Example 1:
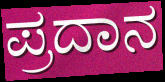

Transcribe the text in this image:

ಪ್ರದಾನ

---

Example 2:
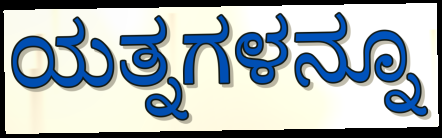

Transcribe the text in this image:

ಯತ್ನಗಳನ್ನೂ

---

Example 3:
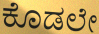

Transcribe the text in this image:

ಕೊಡಲೇ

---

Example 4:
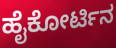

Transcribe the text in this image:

ಹೈಕೋರ್ಟಿನ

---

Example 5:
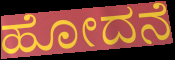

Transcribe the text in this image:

ಹೋದನೆ